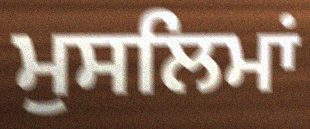
ਮੁਸਲਿਮਾਂ